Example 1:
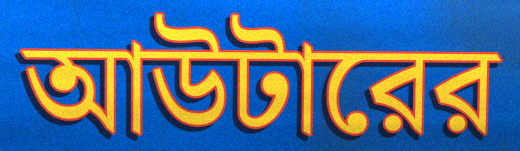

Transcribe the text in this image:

আউটারের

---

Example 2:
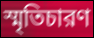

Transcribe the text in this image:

স্মৃতিচারণ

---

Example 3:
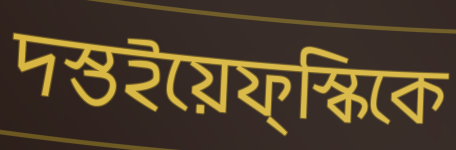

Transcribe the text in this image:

দস্তইয়েফ্স্কিকে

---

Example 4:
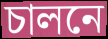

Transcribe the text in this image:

চালনে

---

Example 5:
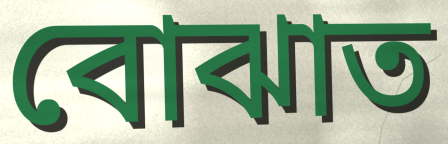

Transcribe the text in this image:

বোঝাত